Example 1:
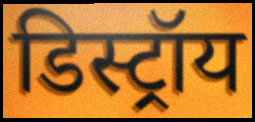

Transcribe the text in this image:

डिस्ट्रॉय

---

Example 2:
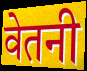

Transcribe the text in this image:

वेतनी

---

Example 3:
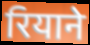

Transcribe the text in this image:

रियाने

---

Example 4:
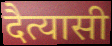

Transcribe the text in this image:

दैत्यासी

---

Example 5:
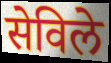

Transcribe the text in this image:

सेविले